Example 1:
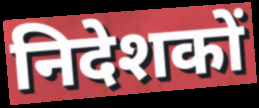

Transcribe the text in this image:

निदेशकों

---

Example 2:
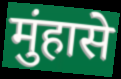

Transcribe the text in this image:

मुंहासे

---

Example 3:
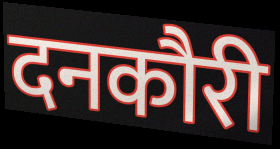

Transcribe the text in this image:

दनकौरी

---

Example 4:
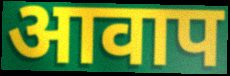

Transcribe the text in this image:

आवाप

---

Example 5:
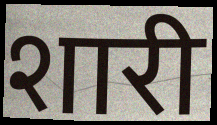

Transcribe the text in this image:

शारी